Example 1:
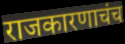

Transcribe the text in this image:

राजकारणाचंच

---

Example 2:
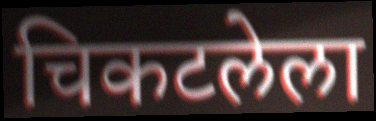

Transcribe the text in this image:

चिकटलेला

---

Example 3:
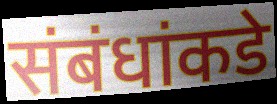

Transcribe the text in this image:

संबंधांकडे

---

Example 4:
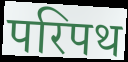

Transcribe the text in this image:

परिपथ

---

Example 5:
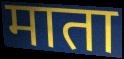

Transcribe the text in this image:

माता